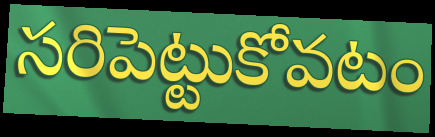
సరిపెట్టుకోవటం